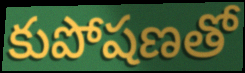
కుపోషణతో